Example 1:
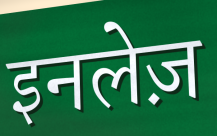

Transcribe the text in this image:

इनलेज़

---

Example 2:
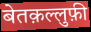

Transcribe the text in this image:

बेतक़ल्लुफ़ी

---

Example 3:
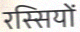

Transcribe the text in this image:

रस्सियों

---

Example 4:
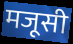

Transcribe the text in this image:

मजूसी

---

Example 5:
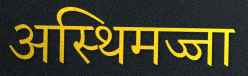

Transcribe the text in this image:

अस्थिमज्जा